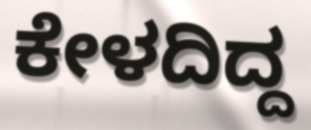
ಕೇಳದಿದ್ದ